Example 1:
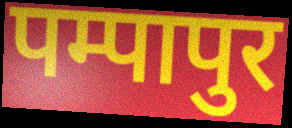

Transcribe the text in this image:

पम्पापुर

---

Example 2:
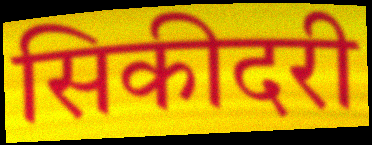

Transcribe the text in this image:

सिकीदरी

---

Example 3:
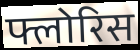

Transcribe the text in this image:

फ्लोरिस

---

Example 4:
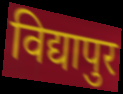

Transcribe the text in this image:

विद्यापुर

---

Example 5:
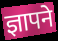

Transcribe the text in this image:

ज्ञापने